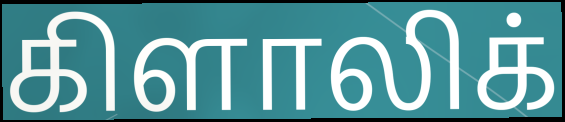
கிளாலிக்